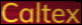
Caltex